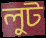
লুট